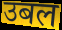
उबल